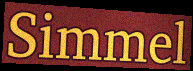
Simmel